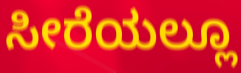
ಸೀರೆಯಲ್ಲೂ